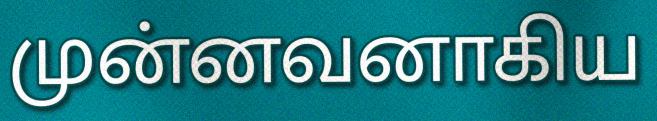
முன்னவனாகிய